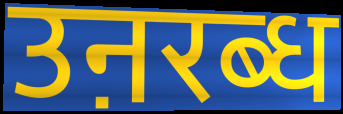
उऩरब्ध